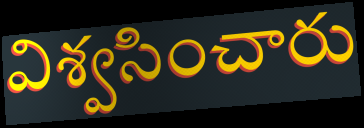
విశ్వసించారు